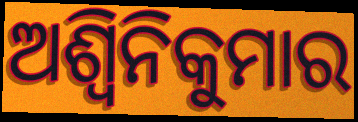
ଅଶ୍ୱିନିକୁମାର